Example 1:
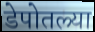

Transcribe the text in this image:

डेपोतल्या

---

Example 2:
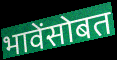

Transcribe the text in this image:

भावेंसोबत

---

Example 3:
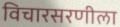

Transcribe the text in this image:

विचारसरणीला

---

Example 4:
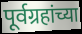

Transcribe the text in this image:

पूर्वग्रहांच्या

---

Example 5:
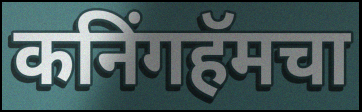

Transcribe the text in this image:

कनिंगहॅमचा